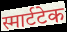
स्मार्टटेक